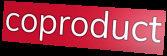
coproduct